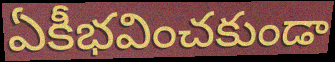
ఏకీభవించకుండా